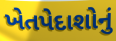
ખેતપેદાશોનું